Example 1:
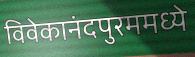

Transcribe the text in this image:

विवेकानंदपुरममध्ये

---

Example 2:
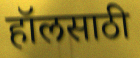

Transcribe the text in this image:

हॉलसाठी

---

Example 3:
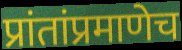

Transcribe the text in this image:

प्रांतांप्रमाणेच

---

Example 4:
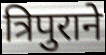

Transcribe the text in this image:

त्रिपुराने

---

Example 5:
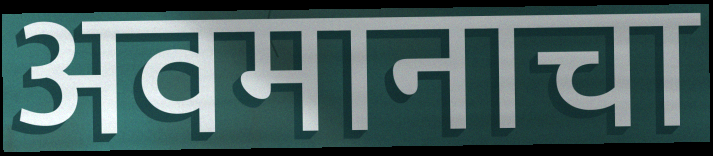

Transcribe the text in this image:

अवमानाचा